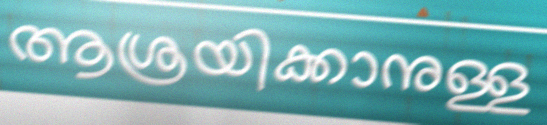
ആശ്രയിക്കാനുള്ള